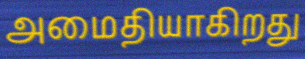
அமைதியாகிறது